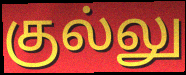
குல்லு